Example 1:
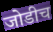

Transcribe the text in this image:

जोडीच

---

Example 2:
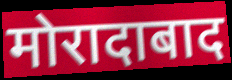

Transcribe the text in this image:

मोरादाबाद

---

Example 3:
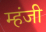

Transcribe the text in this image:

म्हंजी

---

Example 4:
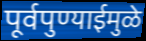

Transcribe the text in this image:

पूर्वपुण्याईमुळे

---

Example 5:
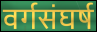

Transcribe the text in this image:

वर्गसंघर्ष